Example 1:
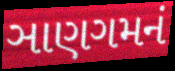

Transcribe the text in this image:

ઞાણગમનં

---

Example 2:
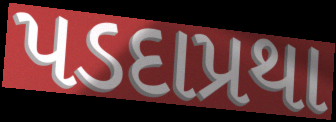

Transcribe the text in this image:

પડદાપ્રથા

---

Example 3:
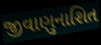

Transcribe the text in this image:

જીવાણુનાશિત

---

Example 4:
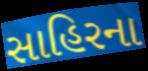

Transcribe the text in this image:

સાહિરના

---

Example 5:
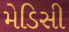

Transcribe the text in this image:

મેડિસી